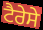
ਟੈਰੇਸੇ